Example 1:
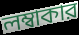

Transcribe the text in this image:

লম্বাকার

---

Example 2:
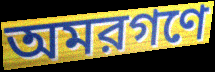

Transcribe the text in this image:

অমরগণে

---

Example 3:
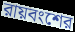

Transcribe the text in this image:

রায়বংশের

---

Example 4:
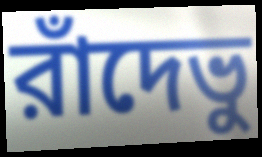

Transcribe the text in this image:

রাঁদেভু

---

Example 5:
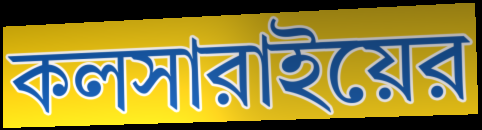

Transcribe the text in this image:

কলসারাইয়ের